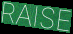
RAISE